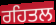
ਰਹਿਤਲ